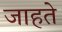
जाहते